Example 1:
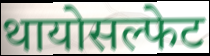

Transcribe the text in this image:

थायोसल्फेट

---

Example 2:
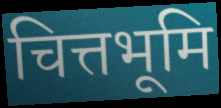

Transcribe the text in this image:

चित्तभूमि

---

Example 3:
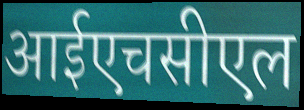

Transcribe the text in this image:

आईएचसीएल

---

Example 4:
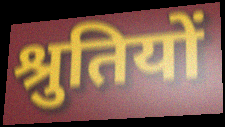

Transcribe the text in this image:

श्रुतियों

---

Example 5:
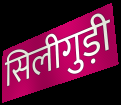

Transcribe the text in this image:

सिलीगुड़ी